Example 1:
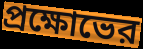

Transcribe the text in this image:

প্রক্ষোভের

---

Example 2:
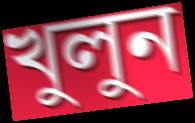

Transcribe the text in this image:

খুলুন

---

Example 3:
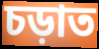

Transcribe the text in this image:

চড়াত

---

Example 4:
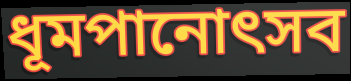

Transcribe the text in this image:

ধূমপানোৎসব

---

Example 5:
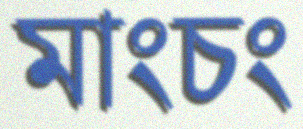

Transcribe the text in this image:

মাংচং